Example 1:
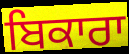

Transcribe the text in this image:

ਬਿਕਾਰਾ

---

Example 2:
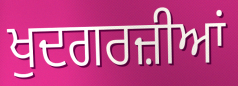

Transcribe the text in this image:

ਖੁਦਗਰਜ਼ੀਆਂ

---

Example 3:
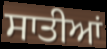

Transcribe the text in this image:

ਸਾਤੀਆਂ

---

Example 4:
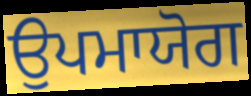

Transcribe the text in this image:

ਉਪਮਾਯੋਗ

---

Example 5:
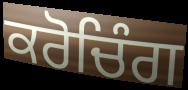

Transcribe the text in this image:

ਕਰੋਚਿੰਗ